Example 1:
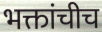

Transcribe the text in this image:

भक्तांचीच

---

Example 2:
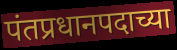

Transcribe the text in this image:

पंतप्रधानपदाच्या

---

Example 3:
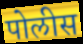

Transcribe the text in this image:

पोलीस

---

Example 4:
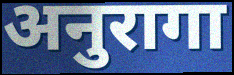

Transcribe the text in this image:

अनुरागा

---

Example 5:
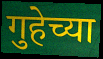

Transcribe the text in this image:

गुहेच्या